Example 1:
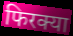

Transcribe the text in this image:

फिरक्या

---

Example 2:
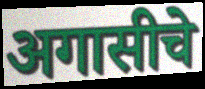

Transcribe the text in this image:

अगासीचे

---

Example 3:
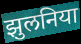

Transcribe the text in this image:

झुलनिया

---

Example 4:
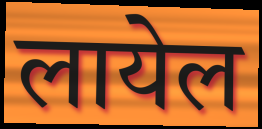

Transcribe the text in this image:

लायेल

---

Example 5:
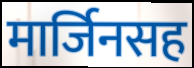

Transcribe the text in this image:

मार्जिनसह